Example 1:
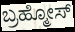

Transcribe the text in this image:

ಬ್ರಹ್ಮೋಸ್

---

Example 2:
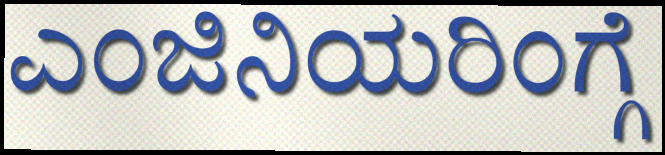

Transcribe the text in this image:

ಎಂಜಿನಿಯರಿಂಗ್ಗೆ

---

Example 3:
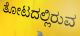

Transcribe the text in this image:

ತೋಟದಲ್ಲಿರುವ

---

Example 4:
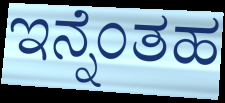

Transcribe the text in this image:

ಇನ್ನೆಂತಹ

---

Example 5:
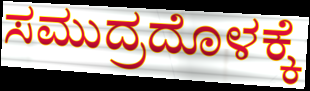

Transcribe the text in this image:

ಸಮುದ್ರದೊಳಕ್ಕೆ